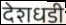
देशधडी